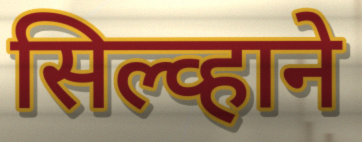
सिल्व्हाने